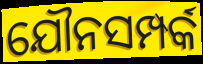
ଯୌନସମ୍ପର୍କ